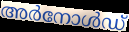
അർനോൾഡ്